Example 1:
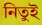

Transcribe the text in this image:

নিতুই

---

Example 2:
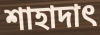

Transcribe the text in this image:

শাহাদাৎ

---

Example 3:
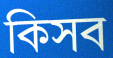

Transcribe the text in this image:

কিসব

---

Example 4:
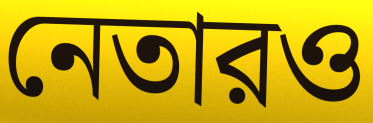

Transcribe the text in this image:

নেতারও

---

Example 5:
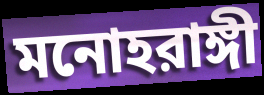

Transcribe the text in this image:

মনোহরাঙ্গী